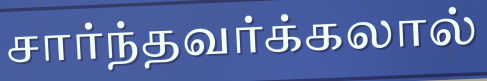
சார்ந்தவர்க்கலால்